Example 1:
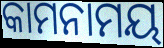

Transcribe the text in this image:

କାମନାମୟ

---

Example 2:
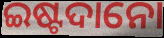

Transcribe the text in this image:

ଇଷ୍ଟଦାନୋ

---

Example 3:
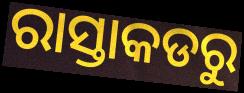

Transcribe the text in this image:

ରାସ୍ତାକଡରୁ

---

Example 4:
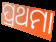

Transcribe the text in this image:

ପ୍ରଥମା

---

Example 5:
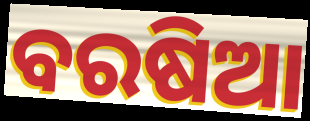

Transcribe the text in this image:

ବରଷିଆ